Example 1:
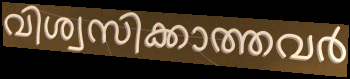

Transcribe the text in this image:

വിശ്വസിക്കാത്തവർ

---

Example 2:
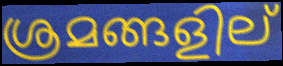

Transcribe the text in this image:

ശ്രമങ്ങളില്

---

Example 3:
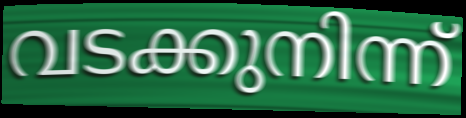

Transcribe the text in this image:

വടക്കുനിന്ന്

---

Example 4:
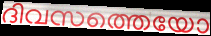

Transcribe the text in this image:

ദിവസത്തെയോ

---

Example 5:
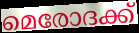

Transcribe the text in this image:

മെരോദക്ക്